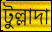
টুল্লাদা